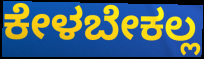
ಕೇಳಬೇಕಲ್ಲ